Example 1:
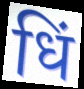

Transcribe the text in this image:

धिं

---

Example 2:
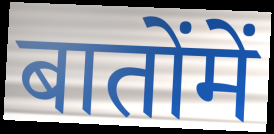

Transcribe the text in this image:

बातोंमें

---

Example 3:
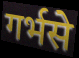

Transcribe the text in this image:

गर्भसे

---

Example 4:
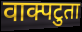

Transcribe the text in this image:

वाक्पटुता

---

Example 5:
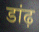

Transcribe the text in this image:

डांढ़